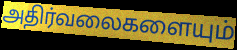
அதிர்வலைகளையும்